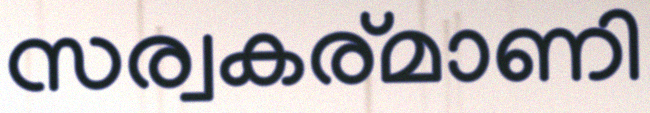
സര്വകര്മാണി